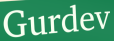
Gurdev